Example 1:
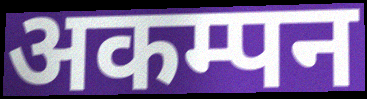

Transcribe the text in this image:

अकम्पन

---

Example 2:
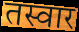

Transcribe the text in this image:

तस्वार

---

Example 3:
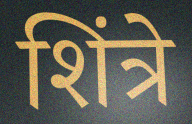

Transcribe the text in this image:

शिंत्रे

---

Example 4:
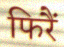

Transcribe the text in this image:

फिरैं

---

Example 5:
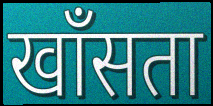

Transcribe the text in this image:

खाँसता